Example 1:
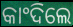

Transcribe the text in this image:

କାଂଦିଲେ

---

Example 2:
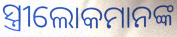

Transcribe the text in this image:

ସ୍ତ୍ରୀଲୋକମାନଙ୍କ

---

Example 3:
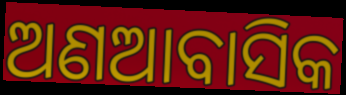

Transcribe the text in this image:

ଅଣଆବାସିକ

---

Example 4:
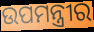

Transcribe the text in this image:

ଉପମନ୍ତ୍ରୀର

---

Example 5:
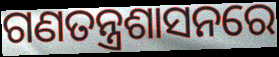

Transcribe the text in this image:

ଗଣତନ୍ତ୍ରଶାସନରେ